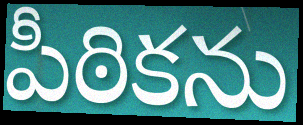
పీఠికను